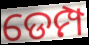
ଡେମ୍ପ